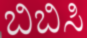
ಬಿಬಿಸಿ